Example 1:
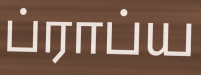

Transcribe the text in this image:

ப்ராப்ய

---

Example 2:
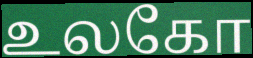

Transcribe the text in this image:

உலகோ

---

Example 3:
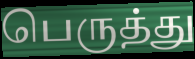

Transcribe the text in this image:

பெருத்து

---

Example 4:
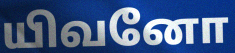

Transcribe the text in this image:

யிவனோ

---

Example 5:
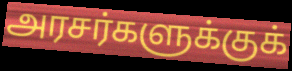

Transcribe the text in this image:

அரசர்களுக்குக்